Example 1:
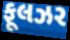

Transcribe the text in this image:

ફૂલઝર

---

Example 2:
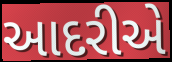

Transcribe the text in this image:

આદરીએ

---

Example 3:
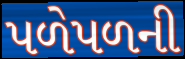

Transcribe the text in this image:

પળેપળની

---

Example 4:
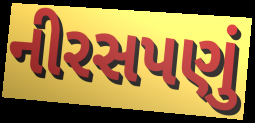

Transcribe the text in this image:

નીરસપણું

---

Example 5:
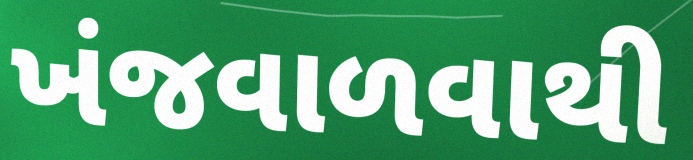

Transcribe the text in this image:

ખંજવાળવાથી